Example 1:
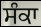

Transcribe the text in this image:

ਸੰਕਾ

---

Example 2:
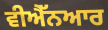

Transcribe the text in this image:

ਵੀਐੱਨਆਰ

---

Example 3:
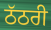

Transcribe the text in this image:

ਠੱਠਰੀ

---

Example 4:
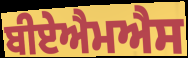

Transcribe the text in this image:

ਬੀਏਐਮਐਸ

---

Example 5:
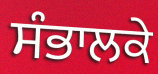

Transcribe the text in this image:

ਸੰਭਾਲਕੇ